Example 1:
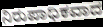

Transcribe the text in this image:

ನಿರುಪಾಧಿಕವಾದ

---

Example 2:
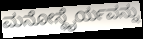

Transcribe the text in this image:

ಮನೋಸ್ಥೈರ್ಯವನ್ನು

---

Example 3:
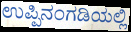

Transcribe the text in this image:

ಉಪ್ಪಿನಂಗಡಿಯಲ್ಲಿ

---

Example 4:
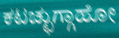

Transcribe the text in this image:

ಕಟಚ್ಛುಗ್ಗಾಹೋ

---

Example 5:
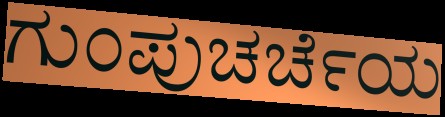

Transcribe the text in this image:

ಗುಂಪುಚರ್ಚೆಯ